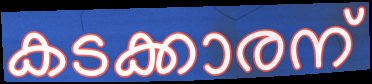
കടക്കാരന്